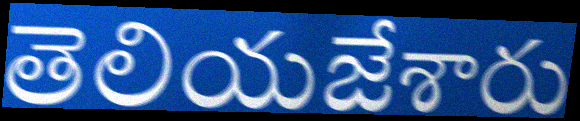
తెలియజేశారు